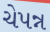
ચેપન્ન